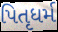
પિતૃધર્મ